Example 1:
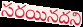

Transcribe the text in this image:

సరయినదని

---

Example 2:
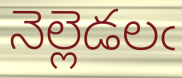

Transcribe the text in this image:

నెల్లెడలఁ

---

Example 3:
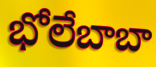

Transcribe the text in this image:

భోలేబాబా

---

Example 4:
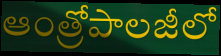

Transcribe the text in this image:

ఆంత్రోపాలజీలో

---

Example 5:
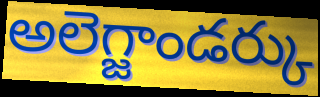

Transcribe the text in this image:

అలెగ్జాండర్కు